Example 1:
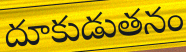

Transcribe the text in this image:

దూకుడుతనం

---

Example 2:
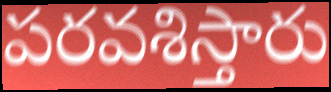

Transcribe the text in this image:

పరవశిస్తారు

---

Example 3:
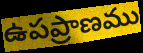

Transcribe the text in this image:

ఉపప్రాణము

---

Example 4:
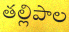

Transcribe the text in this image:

తల్లిపాల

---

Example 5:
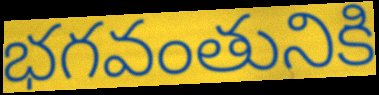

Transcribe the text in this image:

భగవంతునికి